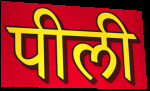
पीली